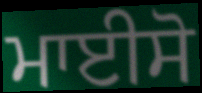
ਮਾਈਸੋ